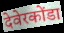
देवेरकोंडा